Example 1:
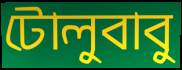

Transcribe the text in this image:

টোলুবাবু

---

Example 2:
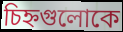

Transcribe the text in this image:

চিহ্নগুলোকে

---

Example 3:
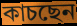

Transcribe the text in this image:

কাচছেন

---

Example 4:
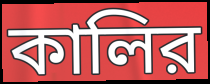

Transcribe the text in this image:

কালির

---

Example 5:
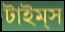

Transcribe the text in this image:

টাইম্স